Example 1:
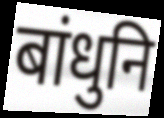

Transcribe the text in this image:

बांधुनि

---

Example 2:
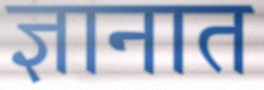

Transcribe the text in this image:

ज्ञानात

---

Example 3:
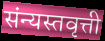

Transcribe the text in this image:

संन्यस्तवृत्ती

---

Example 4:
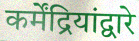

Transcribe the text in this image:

कर्मेंद्रियांद्वारे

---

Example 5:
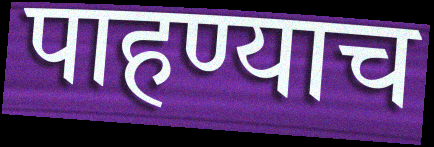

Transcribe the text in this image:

पाहण्याच